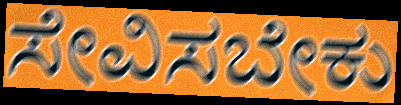
ಸೇವಿಸಬೇಕು